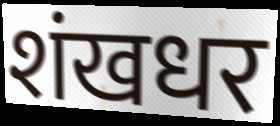
शंखधर